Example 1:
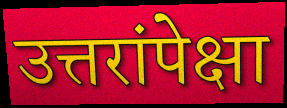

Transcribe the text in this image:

उत्तरांपेक्षा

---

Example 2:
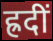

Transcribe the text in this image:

ह्रदीं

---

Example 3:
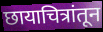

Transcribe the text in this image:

छायाचित्रांतून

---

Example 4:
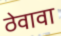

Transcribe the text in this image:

ठेवावा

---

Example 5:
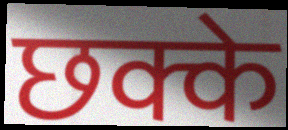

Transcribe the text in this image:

छक्के